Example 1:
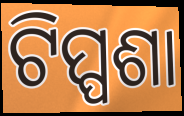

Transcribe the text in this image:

ଟିପ୍ପଶା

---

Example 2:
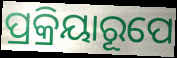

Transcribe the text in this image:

ପ୍ରକ୍ରିୟାରୂପେ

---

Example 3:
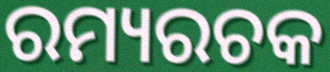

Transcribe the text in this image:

ରମ୍ୟରଚକ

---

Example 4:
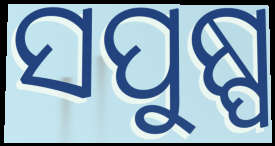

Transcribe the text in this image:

ସପୁଷ୍ପ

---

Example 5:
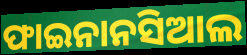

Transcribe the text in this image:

ଫାଇନାନସିଆଲ